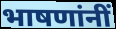
भाषणांनीं